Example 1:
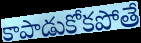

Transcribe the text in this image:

కాపాడుకోకపోతే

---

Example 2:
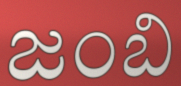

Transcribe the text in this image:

జంబి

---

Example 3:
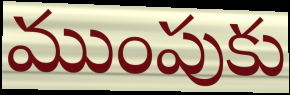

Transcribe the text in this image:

ముంపుకు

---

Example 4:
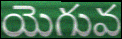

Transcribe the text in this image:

యెగువ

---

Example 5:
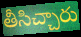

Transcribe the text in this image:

తీసిచ్చారు